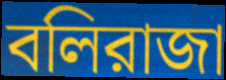
বলিরাজা